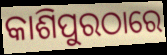
କାଶିପୁରଠାରେ